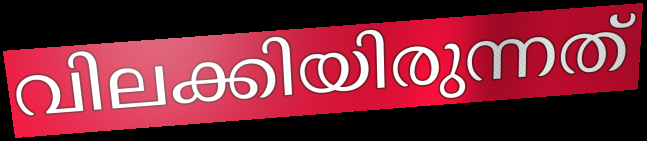
വിലക്കിയിരുന്നത്